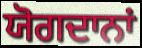
ਯੋਗਦਾਨਾਂ